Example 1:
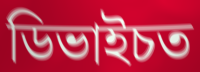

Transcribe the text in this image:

ডিভাইচত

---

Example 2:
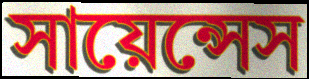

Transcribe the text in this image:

সায়েন্সেস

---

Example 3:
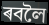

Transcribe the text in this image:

ৰবলৈ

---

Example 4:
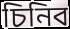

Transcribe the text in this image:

চিনিব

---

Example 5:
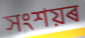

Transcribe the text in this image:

সংশয়ৰ